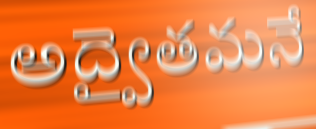
అద్వైతమనే